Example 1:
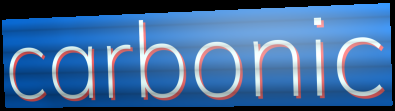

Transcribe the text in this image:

carbonic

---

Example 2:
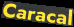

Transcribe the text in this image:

Caracal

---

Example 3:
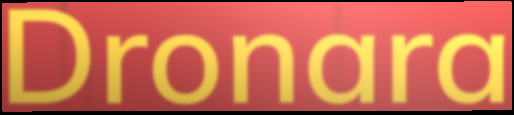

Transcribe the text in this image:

Dronara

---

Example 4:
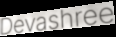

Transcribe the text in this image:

Devashree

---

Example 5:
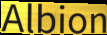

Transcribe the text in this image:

Albion